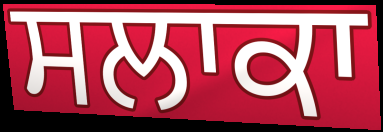
ਸਲਾਕਾ